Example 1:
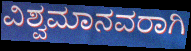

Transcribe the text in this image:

ವಿಶ್ವಮಾನವರಾಗಿ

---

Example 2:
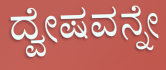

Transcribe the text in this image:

ದ್ವೇಷವನ್ನೇ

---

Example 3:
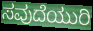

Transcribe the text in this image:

ಸವುದೆಯುರಿ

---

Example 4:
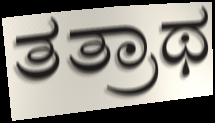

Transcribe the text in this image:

ತತ್ರಾಥ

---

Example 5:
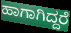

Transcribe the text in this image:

ಹಾಗಾಗಿದ್ದರೆ